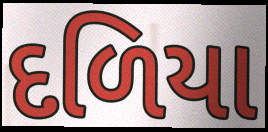
દળિયા